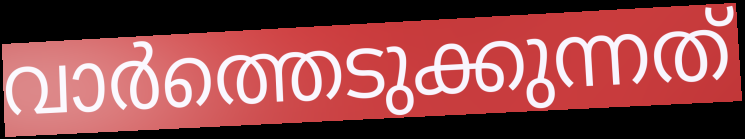
വാർത്തെടുക്കുന്നത്